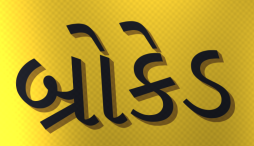
બ્રોકેડ